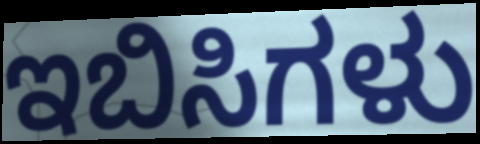
ಇಬಿಸಿಗಳು